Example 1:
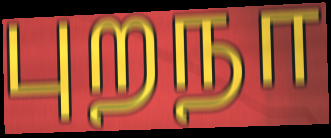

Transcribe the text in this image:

புறநா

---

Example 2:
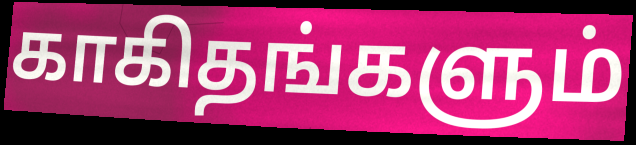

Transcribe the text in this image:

காகிதங்களும்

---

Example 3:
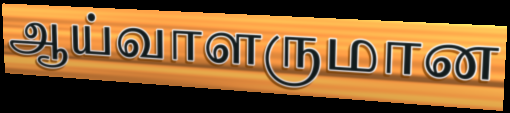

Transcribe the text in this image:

ஆய்வாளருமான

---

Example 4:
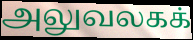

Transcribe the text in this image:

அலுவலகக்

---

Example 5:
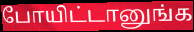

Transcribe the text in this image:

போயிட்டானுங்க